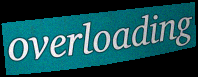
overloading